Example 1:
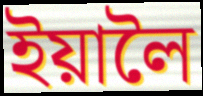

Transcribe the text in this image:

ইয়ালৈ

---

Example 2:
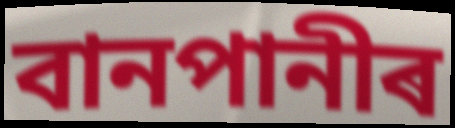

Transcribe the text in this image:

বানপানীৰ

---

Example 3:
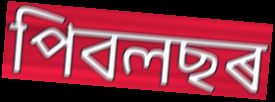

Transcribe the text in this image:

পিবলছৰ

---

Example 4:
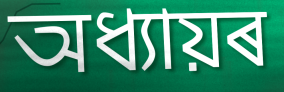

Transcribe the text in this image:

অধ্যায়ৰ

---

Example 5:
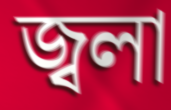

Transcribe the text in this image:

জ্বলা